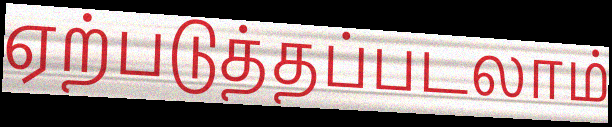
ஏற்படுத்தப்படலாம்